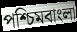
পশ্চিমবাংলা